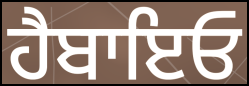
ਹੈਬਾਇਓ